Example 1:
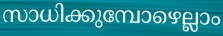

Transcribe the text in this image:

സാധിക്കുമ്പോഴെല്ലാം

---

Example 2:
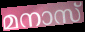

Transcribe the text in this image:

മനാസ്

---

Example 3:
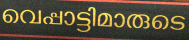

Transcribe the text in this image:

വെപ്പാട്ടിമാരുടെ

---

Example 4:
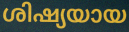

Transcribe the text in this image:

ശിഷ്യയായ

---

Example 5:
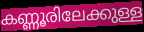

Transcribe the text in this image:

കണ്ണൂരിലേക്കുള്ള